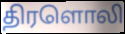
திரளொலி